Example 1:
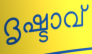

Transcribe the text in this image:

ദൃഷ്ടാവ്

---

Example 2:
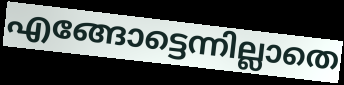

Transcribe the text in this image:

എങ്ങോട്ടെന്നില്ലാതെ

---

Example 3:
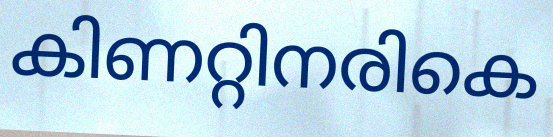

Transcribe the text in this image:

കിണറ്റിനരികെ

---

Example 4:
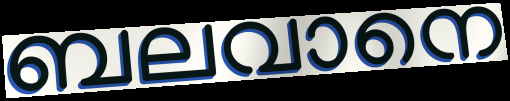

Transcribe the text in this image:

ബലവാനെ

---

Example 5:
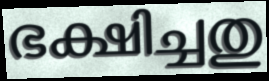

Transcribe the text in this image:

ഭക്ഷിച്ചതു